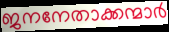
ജനനേതാക്കന്മാർ